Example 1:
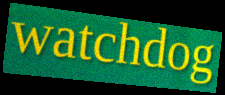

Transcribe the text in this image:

watchdog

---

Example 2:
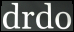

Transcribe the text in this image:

drdo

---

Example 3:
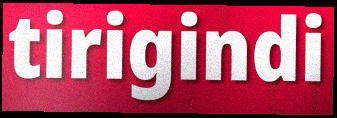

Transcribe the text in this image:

tirigindi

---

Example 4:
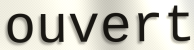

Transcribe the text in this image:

ouvert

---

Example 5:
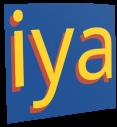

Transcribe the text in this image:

iya